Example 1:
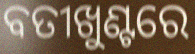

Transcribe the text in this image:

ବତୀଖୁଣ୍ଟରେ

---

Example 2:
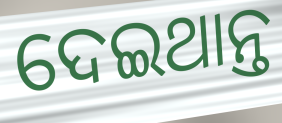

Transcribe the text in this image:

ଦେଇଥାନ୍ତ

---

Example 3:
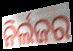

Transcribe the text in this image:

ନିର୍ଲଜର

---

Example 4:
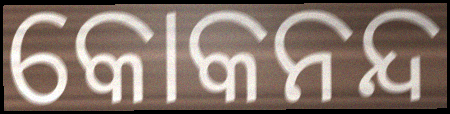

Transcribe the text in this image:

କୋକନନ୍ଦ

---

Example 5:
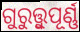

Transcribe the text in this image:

ଗୁରୁତ୍ତ୍ୱୁପୂର୍ଣ୍ଣ